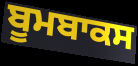
ਬੂਮਬਾਕਸ